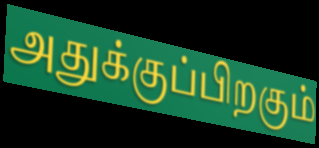
அதுக்குப்பிறகும்